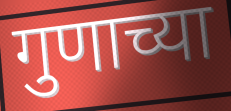
गुणाच्या